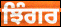
ਝਿੰਗਰ